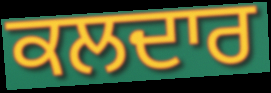
ਕਲਦਾਰ